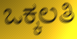
ಒಕ್ಕಲತಿ